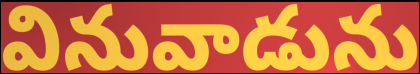
వినువాడును